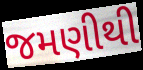
જમણીથી